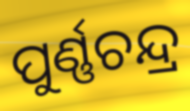
ପୁର୍ଣ୍ଣଚନ୍ଦ୍ର